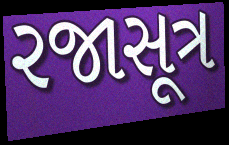
રજાસૂત્ર